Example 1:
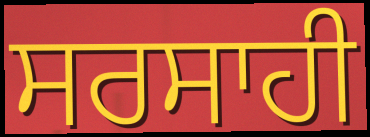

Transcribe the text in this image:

ਸਰਸਾਹੀ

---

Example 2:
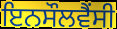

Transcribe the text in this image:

ਇਨਸੌਲਵੈਂਸੀ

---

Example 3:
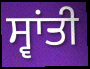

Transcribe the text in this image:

ਸ੍ਵਾਂਤੀ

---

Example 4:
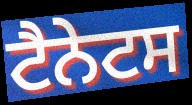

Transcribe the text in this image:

ਟੈਨੇਟਸ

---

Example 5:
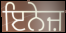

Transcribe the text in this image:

ਇਨੇਜ਼